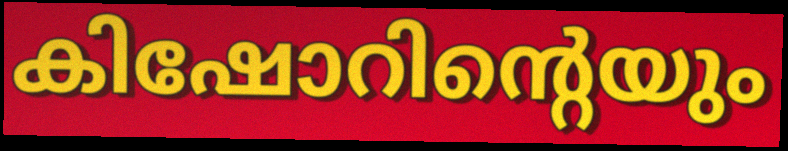
കിഷോറിന്റെയും